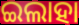
ଇଲାହା